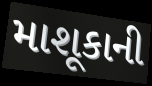
માશૂકાની